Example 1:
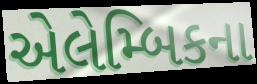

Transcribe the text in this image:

એલેમ્બિકના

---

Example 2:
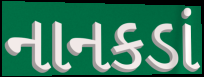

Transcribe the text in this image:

નાનકડાં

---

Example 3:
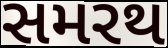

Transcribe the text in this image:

સમરથ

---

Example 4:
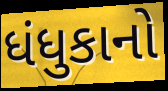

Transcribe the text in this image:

ધંધુકાનો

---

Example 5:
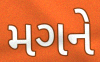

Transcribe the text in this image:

મગને